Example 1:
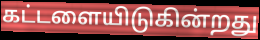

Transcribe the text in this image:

கட்டளையிடுகின்றது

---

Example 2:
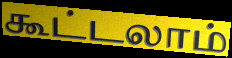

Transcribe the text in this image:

கூட்டலாம்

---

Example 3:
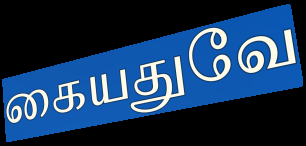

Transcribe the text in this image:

கையதுவே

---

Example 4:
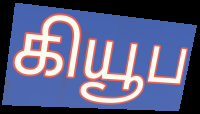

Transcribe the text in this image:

கியூப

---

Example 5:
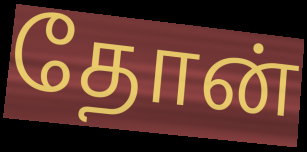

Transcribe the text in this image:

தோன்